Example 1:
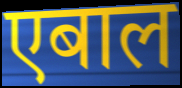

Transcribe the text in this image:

एबाल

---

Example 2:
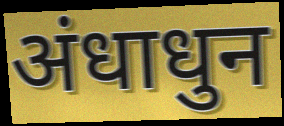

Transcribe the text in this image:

अंधाधुन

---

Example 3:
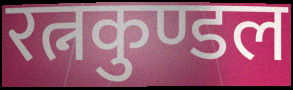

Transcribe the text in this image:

रत्नकुण्डल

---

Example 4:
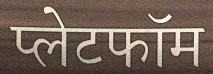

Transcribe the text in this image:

प्लेटफॉम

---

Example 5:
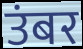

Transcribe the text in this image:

उंबर